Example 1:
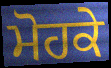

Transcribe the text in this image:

ਮੋਹਕੇ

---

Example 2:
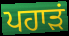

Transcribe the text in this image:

ਪਹਾੜਂ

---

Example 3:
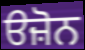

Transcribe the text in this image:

ੳਜ਼ੋਨ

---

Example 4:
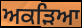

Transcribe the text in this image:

ਅਕੜਿਆ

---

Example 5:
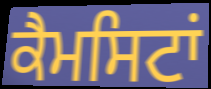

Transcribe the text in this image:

ਕੈਮਸਿਟਾਂ